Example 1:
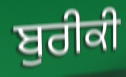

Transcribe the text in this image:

ਬੁਰੀਕੀ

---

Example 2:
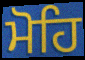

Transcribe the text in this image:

ਮੋਹਿ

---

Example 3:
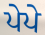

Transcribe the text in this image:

ਪੇਪੇ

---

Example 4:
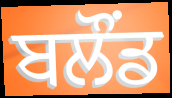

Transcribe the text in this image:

ਬਲੌਂਡ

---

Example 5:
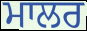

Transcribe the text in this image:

ਮਾਲਰ